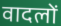
वादलों